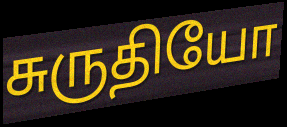
சுருதியோ